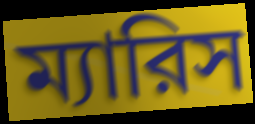
ম্যারিস